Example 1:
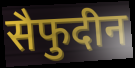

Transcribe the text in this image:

सैफुदीन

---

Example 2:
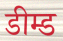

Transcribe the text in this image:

डीम्ड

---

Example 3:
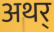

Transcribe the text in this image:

अथर्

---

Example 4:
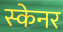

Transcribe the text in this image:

स्‍केनर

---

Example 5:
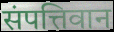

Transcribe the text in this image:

संपत्तिवान